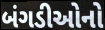
બંગડીઓનો